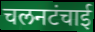
चलनटंचाई